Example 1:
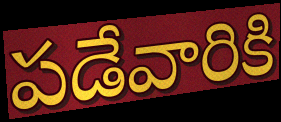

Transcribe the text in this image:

పడేవారికి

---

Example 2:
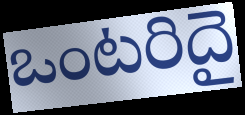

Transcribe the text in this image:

ఒంటరిదై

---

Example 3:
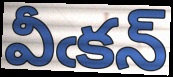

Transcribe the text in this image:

వీఁకన్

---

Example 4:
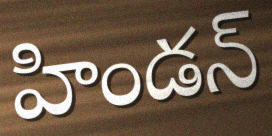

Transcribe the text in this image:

హిండన్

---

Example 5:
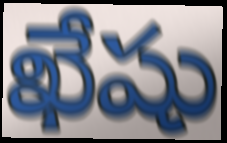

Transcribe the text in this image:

ఖేషు